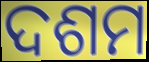
ଦଶମ